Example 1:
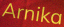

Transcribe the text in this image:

Arnika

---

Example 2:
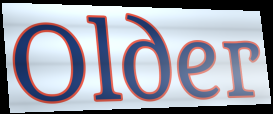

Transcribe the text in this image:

Older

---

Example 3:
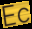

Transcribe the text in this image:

Ec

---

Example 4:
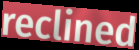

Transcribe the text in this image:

reclined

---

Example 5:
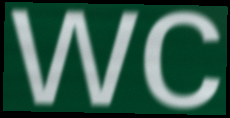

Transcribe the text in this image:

wc